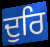
ਦੁਰਿ